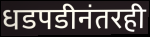
धडपडीनंतरही